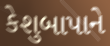
કેશુબાપાને